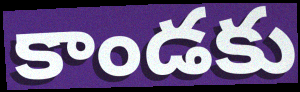
కాండకు